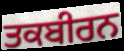
ਤਕਬੀਰਨ